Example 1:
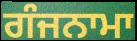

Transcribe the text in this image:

ਗੰਜਨਾਮਾ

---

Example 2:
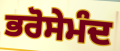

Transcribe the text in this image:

ਭਰੋਸੇਮੰਦ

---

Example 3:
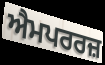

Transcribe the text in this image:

ਐਮਪਰਰਜ਼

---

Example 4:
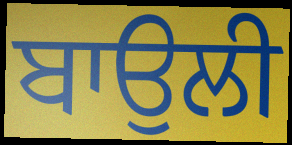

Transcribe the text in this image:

ਬਾਉਲੀ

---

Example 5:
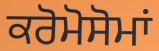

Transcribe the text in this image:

ਕਰੋਮੋਸੋਮਾਂ